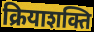
क्रियाशक्ति